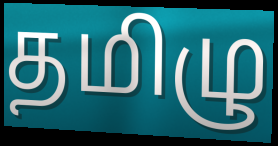
தமிழு